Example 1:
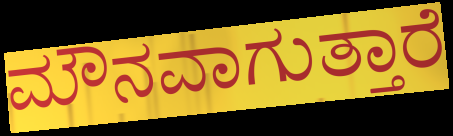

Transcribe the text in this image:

ಮೌನವಾಗುತ್ತಾರೆ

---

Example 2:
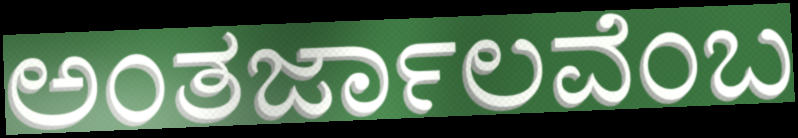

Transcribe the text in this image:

ಅಂತರ್ಜಾಲವೆಂಬ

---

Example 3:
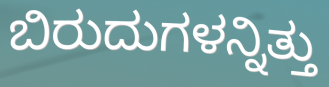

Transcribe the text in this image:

ಬಿರುದುಗಳನ್ನಿತ್ತು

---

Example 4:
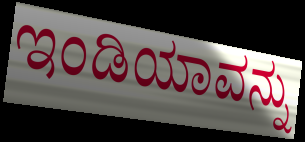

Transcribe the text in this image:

ಇಂಡಿಯಾವನ್ನು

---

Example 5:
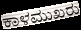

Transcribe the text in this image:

ಕಾಳಮುಖರು